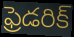
ఫ్రెడరిక్